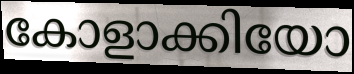
കോളാക്കിയോ